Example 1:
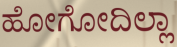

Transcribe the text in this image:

ಹೋಗೋದಿಲ್ಲಾ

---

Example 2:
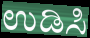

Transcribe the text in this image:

ಉಡಿಸಿ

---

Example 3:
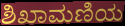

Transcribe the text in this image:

ಶಿಖಾಮಣಿಯ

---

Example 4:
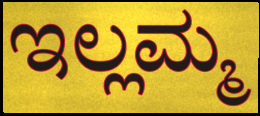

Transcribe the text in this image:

ಇಲ್ಲಮ್ಮ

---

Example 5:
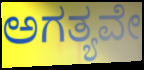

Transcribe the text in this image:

ಅಗತ್ಯವೇ